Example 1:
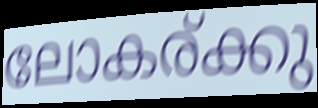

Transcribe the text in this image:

ലോകര്ക്കു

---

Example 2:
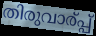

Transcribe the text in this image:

തിരുവാര്പ്പ്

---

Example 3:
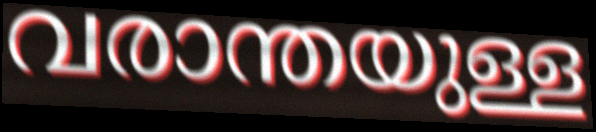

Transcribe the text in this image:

വരാന്തയുള്ള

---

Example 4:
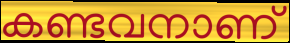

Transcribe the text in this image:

കണ്ടവനാണ്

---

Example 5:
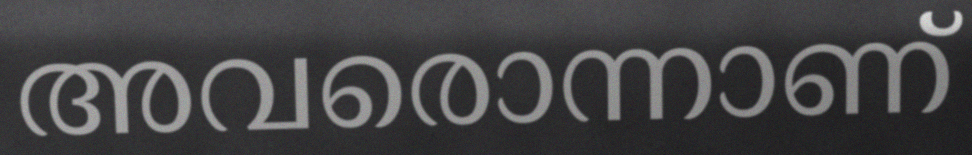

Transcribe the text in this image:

അവരൊന്നാണ്